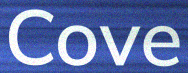
Cove